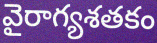
వైరాగ్యశతకం